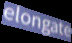
elongate